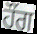
ਹੌਂਗ